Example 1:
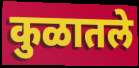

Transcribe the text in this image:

कुळातले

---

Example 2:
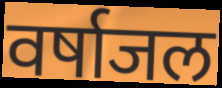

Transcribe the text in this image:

वर्षाजल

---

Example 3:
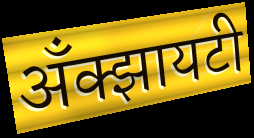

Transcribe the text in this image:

अँक्झायटी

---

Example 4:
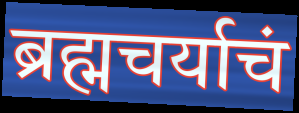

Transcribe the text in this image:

ब्रह्मचर्याचं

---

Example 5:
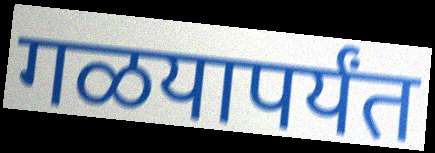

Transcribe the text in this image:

गळयापर्यंत